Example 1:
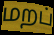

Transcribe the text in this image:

மறப்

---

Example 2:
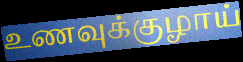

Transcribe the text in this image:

உணவுக்குழாய்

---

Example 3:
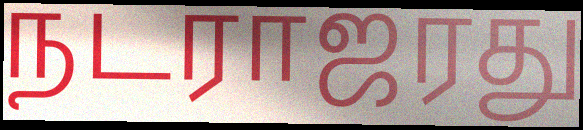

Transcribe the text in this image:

நடராஜரது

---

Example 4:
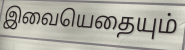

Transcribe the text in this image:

இவையெதையும்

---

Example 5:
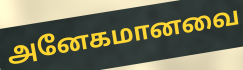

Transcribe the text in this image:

அனேகமானவை